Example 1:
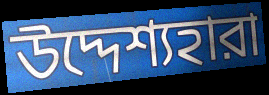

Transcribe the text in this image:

উদ্দেশ্যহারা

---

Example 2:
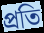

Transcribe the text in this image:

প্রতি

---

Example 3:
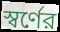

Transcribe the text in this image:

স্বর্ণের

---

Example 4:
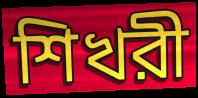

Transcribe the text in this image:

শিখরী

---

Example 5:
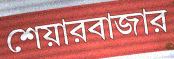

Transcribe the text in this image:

শেয়ারবাজার